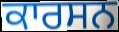
ਕਾਰਸਨ